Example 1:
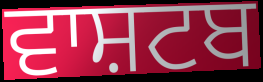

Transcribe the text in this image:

ਵਾਸ਼ਟਬ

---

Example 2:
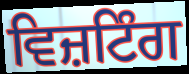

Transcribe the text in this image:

ਵਿਜ਼ਟਿੰਗ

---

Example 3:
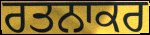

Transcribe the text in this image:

ਰਤਨਾਕਰ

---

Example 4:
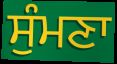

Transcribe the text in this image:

ਸੁੰਮਣਾ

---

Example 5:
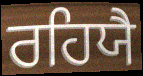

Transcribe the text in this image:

ਰਹਿਯੈ